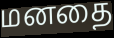
மனதை